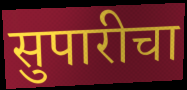
सुपारीचा